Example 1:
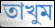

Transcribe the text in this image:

তাখুম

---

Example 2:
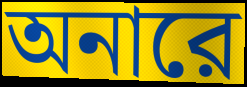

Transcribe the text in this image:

অনারে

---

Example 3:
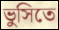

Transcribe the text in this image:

ভুসিতে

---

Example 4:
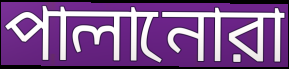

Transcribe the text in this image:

পালানোরা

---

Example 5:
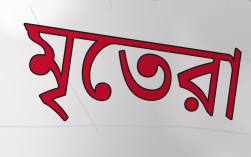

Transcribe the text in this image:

মৃতেরা